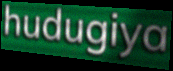
hudugiya